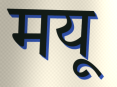
मयू